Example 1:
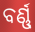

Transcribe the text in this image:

ବର୍ଣ୍ଣ୍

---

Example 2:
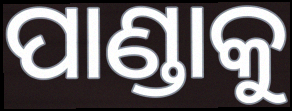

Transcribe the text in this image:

ପାଣ୍ଡାକୁ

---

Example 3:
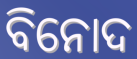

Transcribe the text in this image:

ବିନୋଦ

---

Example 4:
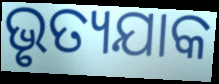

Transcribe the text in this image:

ଭୃତ୍ୟଯାକ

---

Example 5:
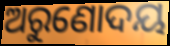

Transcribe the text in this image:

ଅରୁଣୋଦୟ